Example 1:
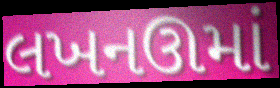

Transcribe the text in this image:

લખનઊમાં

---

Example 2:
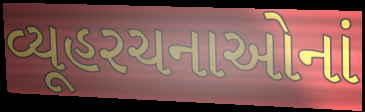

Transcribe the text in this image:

વ્યૂહરચનાઓનાં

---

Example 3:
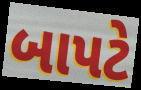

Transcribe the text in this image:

બાપટે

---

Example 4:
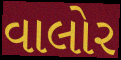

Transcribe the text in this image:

વાલોર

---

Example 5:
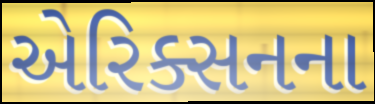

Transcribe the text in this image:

એરિક્સનના